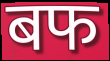
बफ